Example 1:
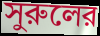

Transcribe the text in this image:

সুরুলের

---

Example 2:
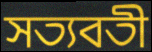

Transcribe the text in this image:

সত্যবতী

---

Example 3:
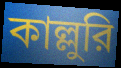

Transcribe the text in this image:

কাল্লুরি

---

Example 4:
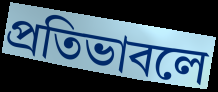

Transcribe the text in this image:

প্রতিভাবলে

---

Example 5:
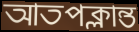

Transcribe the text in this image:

আতপক্লান্ত